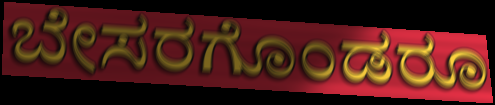
ಬೇಸರಗೊಂಡರೂ